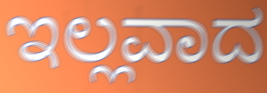
ಇಲ್ಲವಾದ